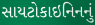
સાયટોકાઇનિનનું